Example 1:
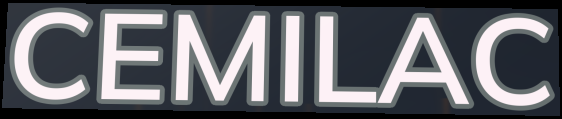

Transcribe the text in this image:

CEMILAC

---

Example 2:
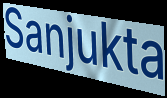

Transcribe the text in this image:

Sanjukta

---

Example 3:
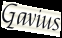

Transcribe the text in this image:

Gavius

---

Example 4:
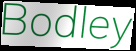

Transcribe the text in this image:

Bodley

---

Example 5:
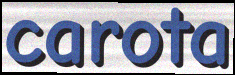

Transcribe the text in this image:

carota